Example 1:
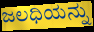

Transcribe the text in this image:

ಜಲಧಿಯನ್ನು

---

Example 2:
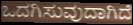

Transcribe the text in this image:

ಒದಗಿಸುವುದಾಗಿದೆ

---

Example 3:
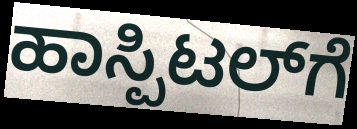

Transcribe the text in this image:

ಹಾಸ್ಪಿಟಲ್‌ಗೆ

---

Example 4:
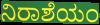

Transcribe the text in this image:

ನಿರಾಶೆಯಂ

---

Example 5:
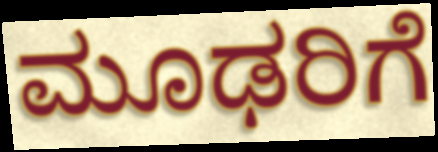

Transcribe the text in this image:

ಮೂಢರಿಗೆ